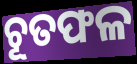
ଚୂତଫଳ